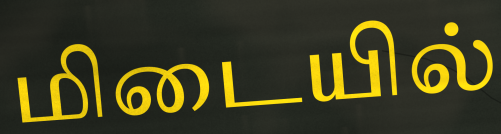
மிடையில்